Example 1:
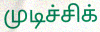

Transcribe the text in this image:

முடிச்சிக்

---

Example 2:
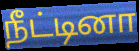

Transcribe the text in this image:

நீட்டினா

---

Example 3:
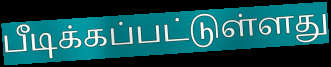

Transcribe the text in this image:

பீடிக்கப்பட்டுள்ளது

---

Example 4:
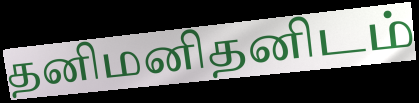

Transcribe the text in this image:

தனிமனிதனிடம்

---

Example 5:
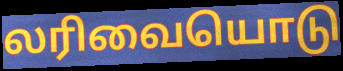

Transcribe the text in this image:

லரிவையொடு